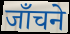
जाँचने